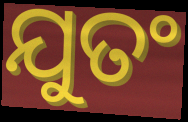
ଯୁତଂ